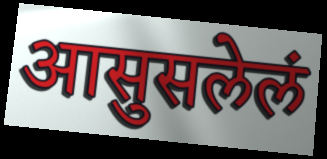
आसुसलेलं